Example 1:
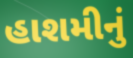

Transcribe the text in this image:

હાશમીનું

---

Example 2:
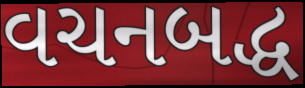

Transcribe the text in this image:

વચનબદ્ધ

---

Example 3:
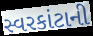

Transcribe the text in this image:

સ્વરકાંટાની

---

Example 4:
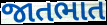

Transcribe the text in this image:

જાતભાત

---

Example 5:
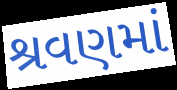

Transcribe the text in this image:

શ્રવણમાં